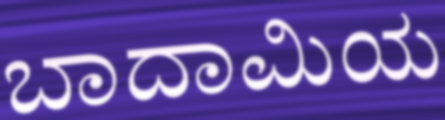
ಬಾದಾಮಿಯ